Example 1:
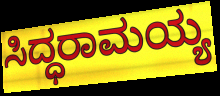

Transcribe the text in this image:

ಸಿದ್ಧರಾಮಯ್ಯ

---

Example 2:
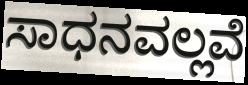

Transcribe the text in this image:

ಸಾಧನವಲ್ಲವೆ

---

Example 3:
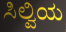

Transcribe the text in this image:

ಸಿಲ್ವಿಯ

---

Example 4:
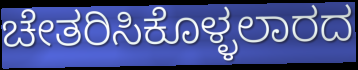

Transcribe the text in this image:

ಚೇತರಿಸಿಕೊಳ್ಳಲಾರದ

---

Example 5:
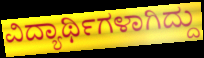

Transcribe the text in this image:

ವಿದ್ಯಾರ್ಥಿಗಳಾಗಿದ್ದು